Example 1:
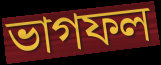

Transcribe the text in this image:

ভাগফল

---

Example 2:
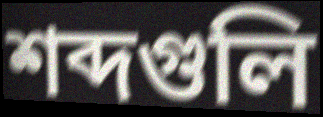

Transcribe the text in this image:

শব্দগুলি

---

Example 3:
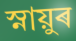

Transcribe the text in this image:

স্নায়ুৰ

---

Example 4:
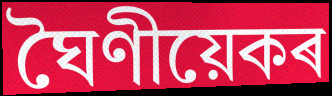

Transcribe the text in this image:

ঘৈণীয়েকৰ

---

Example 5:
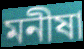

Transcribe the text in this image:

মনীষা